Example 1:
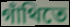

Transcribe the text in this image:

গাঁথিতে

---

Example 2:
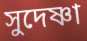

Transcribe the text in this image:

সুদেষ্ণা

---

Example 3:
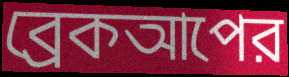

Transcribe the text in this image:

ব্রেকআপের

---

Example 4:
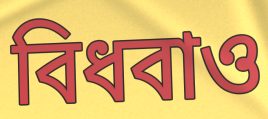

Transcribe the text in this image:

বিধবাও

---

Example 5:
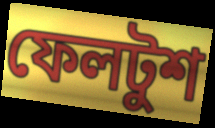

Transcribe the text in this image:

ফেলটুশ